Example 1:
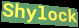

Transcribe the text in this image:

Shylock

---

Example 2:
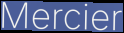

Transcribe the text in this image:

Mercier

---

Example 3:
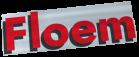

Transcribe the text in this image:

Floem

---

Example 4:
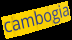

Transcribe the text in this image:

cambogia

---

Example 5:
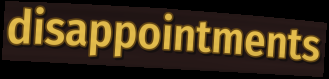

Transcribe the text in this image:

disappointments